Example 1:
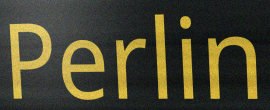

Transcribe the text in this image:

Perlin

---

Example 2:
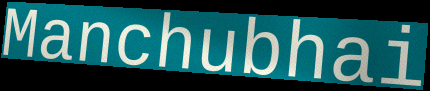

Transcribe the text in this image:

Manchubhai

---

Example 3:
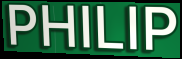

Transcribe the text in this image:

PHILIP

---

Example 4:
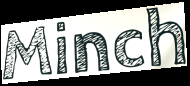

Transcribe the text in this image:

Minch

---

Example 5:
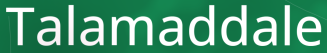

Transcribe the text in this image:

Talamaddale